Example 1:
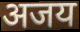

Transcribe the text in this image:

अजय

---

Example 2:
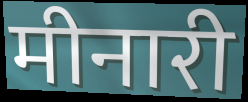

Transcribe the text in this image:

मीनारी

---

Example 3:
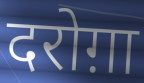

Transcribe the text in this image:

दरोग़ा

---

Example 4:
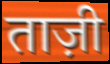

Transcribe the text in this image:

ताज़ी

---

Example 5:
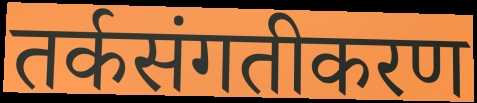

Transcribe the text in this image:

तर्कसंगतीकरण